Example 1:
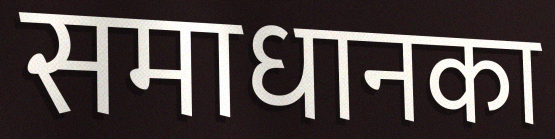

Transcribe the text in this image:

समाधानका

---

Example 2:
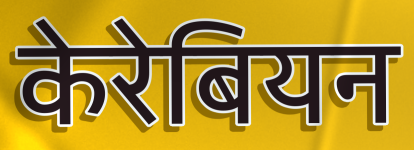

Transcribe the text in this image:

केरेबियन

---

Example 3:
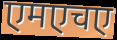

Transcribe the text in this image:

एमएचए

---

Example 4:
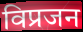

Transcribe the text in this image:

विप्रजन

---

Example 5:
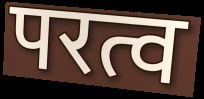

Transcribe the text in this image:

परत्व